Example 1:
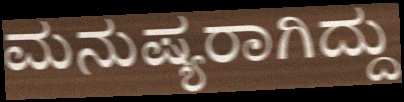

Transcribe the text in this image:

ಮನುಷ್ಯರಾಗಿದ್ದು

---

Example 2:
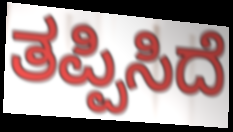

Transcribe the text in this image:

ತಪ್ಪಿಸಿದೆ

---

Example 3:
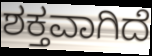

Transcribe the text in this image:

ಶಕ್ತವಾಗಿದೆ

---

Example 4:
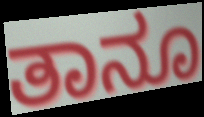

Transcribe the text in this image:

ತಾನೂ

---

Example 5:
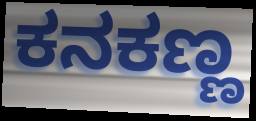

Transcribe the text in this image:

ಕನಕಣ್ಣ